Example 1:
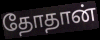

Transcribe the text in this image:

தோதான்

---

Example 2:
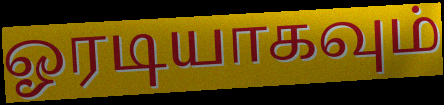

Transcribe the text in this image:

ஓரடியாகவும்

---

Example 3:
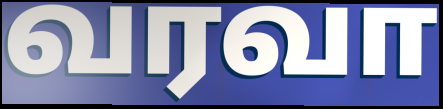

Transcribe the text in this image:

வரவா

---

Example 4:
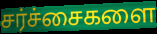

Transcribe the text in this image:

சர்ச்சைகளை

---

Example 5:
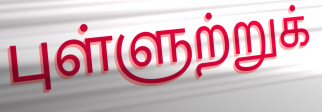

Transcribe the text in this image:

புள்ளுற்றுக்